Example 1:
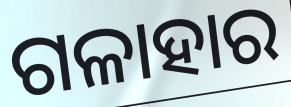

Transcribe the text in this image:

ଗଳାହାର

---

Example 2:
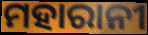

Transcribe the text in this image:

ମହାରାନୀ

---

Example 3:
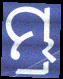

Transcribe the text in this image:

ମ୍ଭ୍ର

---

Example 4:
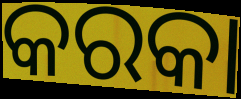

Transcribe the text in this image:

କରକା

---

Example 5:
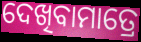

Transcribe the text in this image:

ଦେଖିବାମାତ୍ରେ